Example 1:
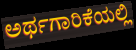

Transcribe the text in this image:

ಅರ್ಥಗಾರಿಕೆಯಲ್ಲಿ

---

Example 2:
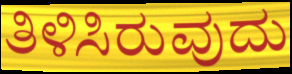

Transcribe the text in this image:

ತಿಳಿಸಿರುವುದು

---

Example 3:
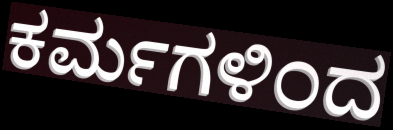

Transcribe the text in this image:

ಕರ್ಮಗಳಿಂದ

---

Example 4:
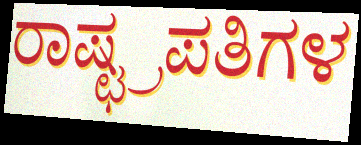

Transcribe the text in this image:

ರಾಷ್ಟ್ರಪತಿಗಳ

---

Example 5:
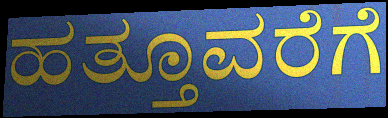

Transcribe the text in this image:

ಹತ್ತೂವರೆಗೆ